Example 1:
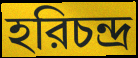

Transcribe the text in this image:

হরিচন্দ্র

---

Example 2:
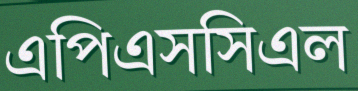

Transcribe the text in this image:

এপিএসসিএল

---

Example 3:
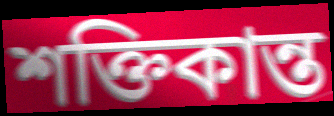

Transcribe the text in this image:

শক্তিকান্ত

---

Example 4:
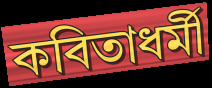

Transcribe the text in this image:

কবিতাধর্মী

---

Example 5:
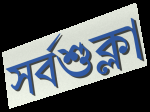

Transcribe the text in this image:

সর্বশুক্লা